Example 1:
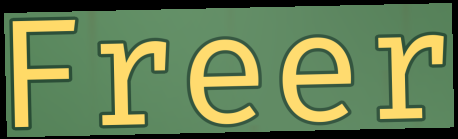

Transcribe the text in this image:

Freer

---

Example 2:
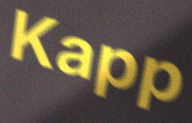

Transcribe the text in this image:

Kapp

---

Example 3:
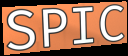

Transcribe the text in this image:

SPIC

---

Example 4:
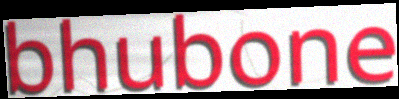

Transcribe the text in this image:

bhubone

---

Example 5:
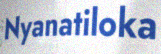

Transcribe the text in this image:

Nyanatiloka